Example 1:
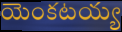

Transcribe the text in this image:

యెంకటయ్య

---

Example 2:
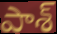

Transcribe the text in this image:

పాశ్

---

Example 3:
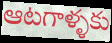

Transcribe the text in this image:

ఆటగాళ్ళకు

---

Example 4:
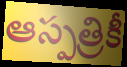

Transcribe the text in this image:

ఆస్పత్రికీ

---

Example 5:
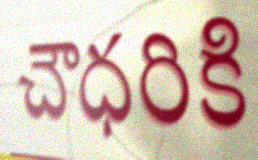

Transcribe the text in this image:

చౌధరికి